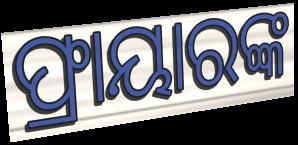
ଫ୍ରାୟାରଙ୍କ